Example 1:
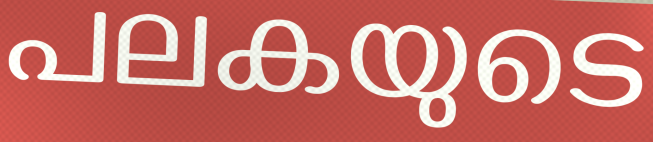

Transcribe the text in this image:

പലകയുടെ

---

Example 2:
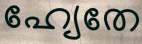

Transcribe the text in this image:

ഹ്യേതേ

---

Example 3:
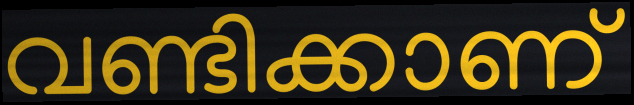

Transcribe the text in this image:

വണ്ടിക്കാണ്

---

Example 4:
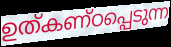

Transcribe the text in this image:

ഉത്കണ്ഠപ്പെടുന്ന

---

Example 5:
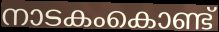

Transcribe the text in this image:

നാടകംകൊണ്ട്